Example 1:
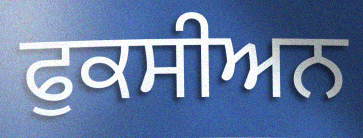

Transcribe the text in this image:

ਫੁਕਸੀਅਨ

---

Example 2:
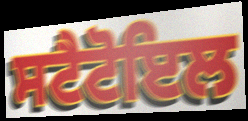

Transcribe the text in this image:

ਸਟੈਟੋਇਲ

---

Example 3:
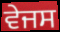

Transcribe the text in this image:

ਵੇਜਸ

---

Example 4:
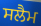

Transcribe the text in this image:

ਸਲੈਮ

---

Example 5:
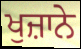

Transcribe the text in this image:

ਖੁਜ਼ਾਨੇ